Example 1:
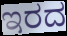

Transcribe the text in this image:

ಇರದ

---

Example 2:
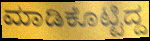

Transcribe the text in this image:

ಮಾಡಿಕೊಟ್ಟಿದ್ದ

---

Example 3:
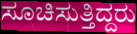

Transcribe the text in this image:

ಸೂಚಿಸುತ್ತಿದ್ದರು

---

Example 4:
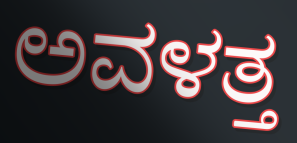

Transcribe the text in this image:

ಅವಳತ್ತ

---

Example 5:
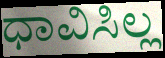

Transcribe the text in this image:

ಧಾವಿಸಿಲ್ಲ